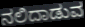
ನಲಿದಾಡುವ